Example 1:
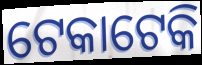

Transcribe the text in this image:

ଟେକାଟେକି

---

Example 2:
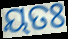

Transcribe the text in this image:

ୟତଃ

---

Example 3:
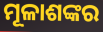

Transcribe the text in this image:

ମୂଳାଶଙ୍କର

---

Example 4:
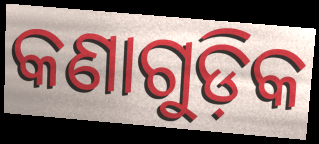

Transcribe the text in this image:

କଣାଗୁଡ଼ିକ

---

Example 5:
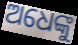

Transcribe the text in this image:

ଅଧେଙ୍କୁ